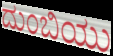
ದುಂಬಿಯು